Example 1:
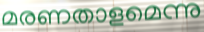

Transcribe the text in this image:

മരണതാളമെന്നു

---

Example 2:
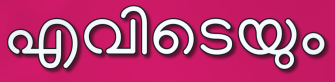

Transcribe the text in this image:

എവിടെയും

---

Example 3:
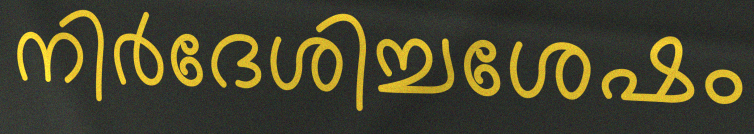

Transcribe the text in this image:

നിർദേശിച്ചശേഷം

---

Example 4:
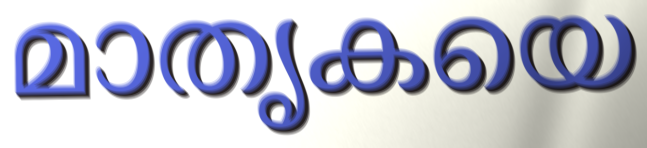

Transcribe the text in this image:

മാതൃകയെ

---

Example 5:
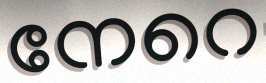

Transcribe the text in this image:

നേറെ